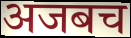
अजबच